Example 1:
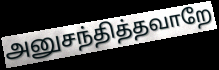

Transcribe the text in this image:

அனுசந்தித்தவாறே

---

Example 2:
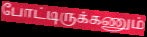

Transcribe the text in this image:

போட்டிருக்கணும்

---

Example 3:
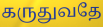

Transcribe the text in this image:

கருதுவதே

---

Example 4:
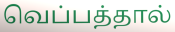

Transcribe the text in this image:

வெப்பத்தால்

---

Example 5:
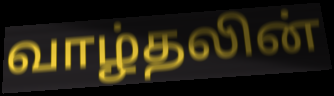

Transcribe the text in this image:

வாழ்தலின்